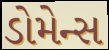
ડોમેન્સ